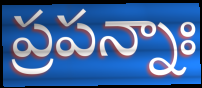
ప్రపన్నాః